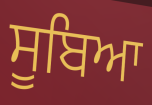
ਸੂਬਿਆ